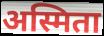
अस्मिता